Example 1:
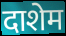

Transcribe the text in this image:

दाशेम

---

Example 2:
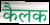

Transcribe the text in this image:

कैलक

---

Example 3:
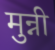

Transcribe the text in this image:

मुन्नी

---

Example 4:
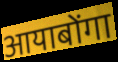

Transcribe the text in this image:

आयाबोंगा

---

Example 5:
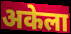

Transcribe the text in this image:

अकेला